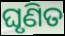
ଘୃଣିତ